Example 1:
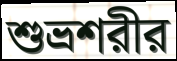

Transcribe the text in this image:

শুভ্রশরীর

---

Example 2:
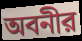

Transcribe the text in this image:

অবনীর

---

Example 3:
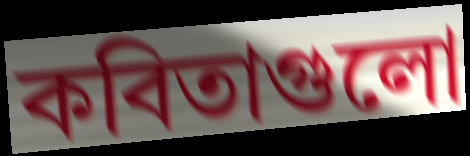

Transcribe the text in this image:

কবিতাগুলো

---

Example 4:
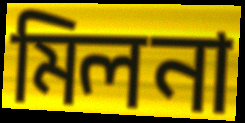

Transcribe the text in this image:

মিলনা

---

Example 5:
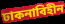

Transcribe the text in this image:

ঢাকনাবিহীন